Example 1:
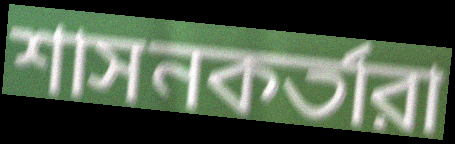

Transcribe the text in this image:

শাসনকর্তারা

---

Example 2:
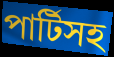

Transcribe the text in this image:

পার্টিসহ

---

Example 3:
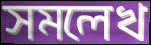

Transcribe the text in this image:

সমলেখ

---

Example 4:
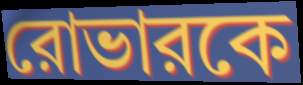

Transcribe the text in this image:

রোভারকে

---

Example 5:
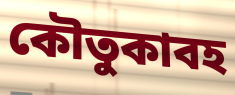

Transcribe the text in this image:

কৌতুকাবহ